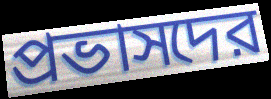
প্রভাসদের